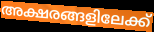
അക്ഷരങ്ങളിലേക്ക്